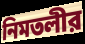
নিমতলীর